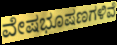
ವೇಷಭೂಷಣಗಳಿವೆ